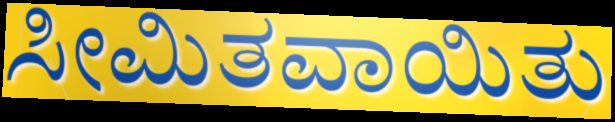
ಸೀಮಿತವಾಯಿತು